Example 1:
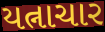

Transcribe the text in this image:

યત્નાચાર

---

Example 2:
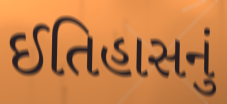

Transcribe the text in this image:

ઈતિહાસનું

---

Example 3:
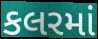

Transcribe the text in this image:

કલરમાં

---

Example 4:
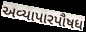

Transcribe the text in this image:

અવ્યાપારપૌષધ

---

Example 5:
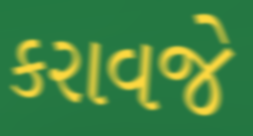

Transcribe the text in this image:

કરાવજે